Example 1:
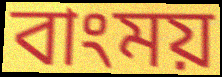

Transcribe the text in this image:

বাংময়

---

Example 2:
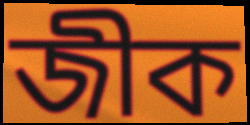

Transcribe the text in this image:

জীক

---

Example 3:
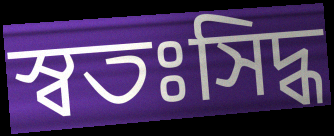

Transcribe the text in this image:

স্বতঃসিদ্ধ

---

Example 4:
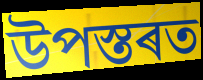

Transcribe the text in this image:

উপস্তৰত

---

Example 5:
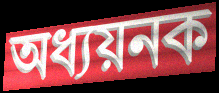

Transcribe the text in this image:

অধ্য়য়নক